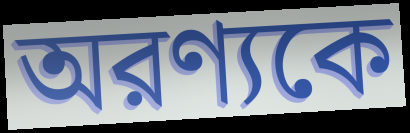
অরণ্যকে